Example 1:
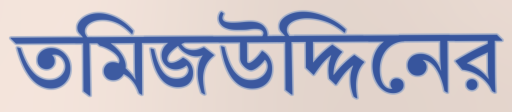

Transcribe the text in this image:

তমিজউদ্দিনের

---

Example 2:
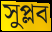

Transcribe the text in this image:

সুপ্লব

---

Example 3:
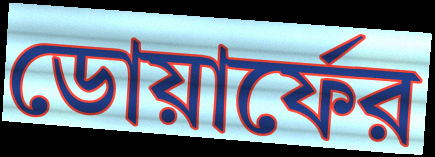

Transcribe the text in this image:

ডোয়ার্ফের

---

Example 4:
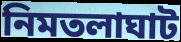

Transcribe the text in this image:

নিমতলাঘাট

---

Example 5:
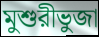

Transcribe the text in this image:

মুশুরীভুজা